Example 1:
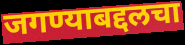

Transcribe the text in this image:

जगण्याबद्दलचा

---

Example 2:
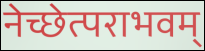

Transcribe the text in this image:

नेच्छेत्पराभवम्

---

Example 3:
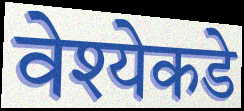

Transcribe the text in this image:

वेश्येकडे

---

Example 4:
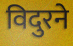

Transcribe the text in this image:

विदुरने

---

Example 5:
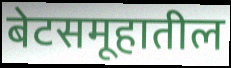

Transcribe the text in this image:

बेटसमूहातील